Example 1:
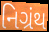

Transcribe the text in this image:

નિગ્રંથ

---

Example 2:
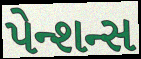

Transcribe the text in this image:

પેન્શન્સ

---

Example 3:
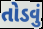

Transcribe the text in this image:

તોડવું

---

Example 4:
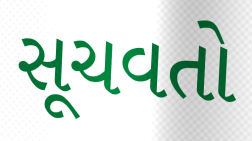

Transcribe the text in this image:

સૂચવતો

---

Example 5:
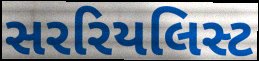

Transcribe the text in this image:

સરરિયલિસ્ટ